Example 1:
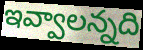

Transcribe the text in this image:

ఇవ్వాలన్నది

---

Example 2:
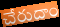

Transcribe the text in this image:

చేరుదాం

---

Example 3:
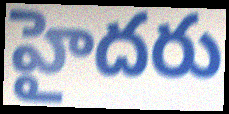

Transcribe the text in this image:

హైదరు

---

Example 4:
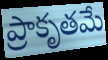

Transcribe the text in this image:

ప్రాకృతమే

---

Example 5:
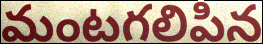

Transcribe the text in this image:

మంటగలిపిన